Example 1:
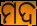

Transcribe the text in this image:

ମଦ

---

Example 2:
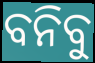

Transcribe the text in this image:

ବନିବୁ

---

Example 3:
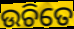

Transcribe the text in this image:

ଉଚିତେ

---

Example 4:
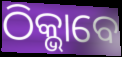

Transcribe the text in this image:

ଠିକ୍ଭାବେ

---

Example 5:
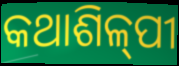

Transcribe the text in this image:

କଥାଶିଳ୍‌ପୀ